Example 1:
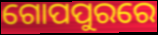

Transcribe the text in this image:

ଗୋପପୁରରେ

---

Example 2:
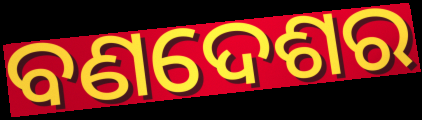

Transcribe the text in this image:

ବଣଦେଶର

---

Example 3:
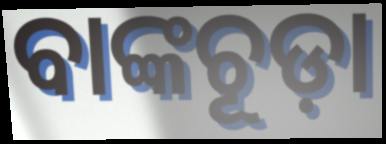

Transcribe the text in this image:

ବାଙ୍କଚୂଡ଼ା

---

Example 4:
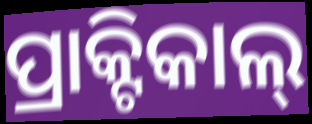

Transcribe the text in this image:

ପ୍ରାକ୍ଟିକାଲ୍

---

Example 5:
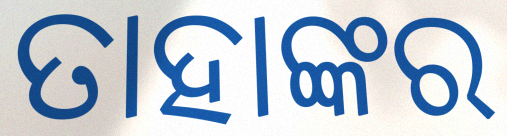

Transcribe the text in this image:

ତାହାଙ୍କର